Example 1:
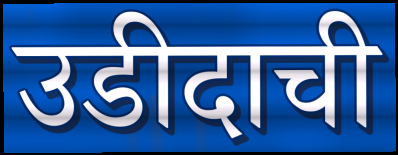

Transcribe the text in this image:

उडीदाची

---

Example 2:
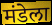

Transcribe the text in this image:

मंडेला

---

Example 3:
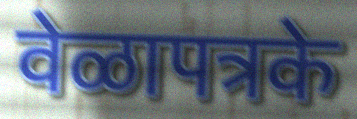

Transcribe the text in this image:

वेळापत्रके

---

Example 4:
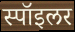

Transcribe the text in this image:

स्पॉइलर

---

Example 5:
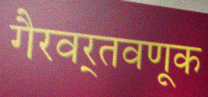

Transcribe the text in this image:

गैरवर्तवणूक